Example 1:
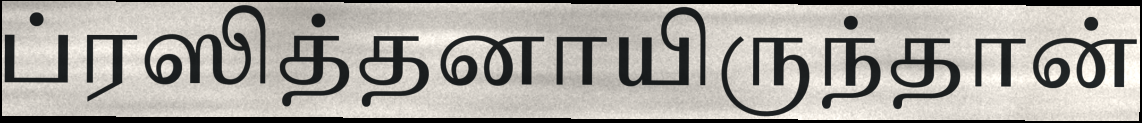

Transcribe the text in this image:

ப்ரஸித்தனாயிருந்தான்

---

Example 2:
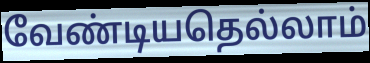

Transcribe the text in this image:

வேண்டியதெல்லாம்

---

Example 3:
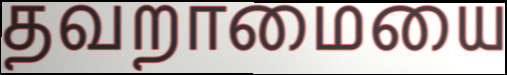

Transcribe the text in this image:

தவறாமையை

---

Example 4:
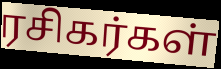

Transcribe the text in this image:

ரசிகர்கள்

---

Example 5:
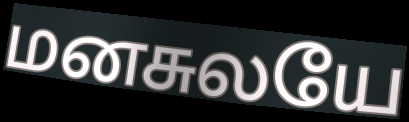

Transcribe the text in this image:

மனசுலயே